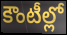
కౌంటీల్లో